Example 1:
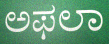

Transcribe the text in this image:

ಅಫಲಾ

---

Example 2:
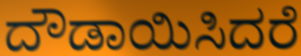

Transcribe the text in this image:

ದೌಡಾಯಿಸಿದರೆ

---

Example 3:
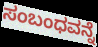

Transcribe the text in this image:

ಸಂಬಂಧವನ್ನೆ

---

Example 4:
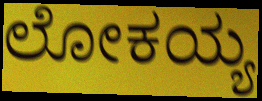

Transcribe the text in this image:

ಲೋಕಯ್ಯ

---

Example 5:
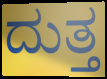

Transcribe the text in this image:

ದುತ್ತ